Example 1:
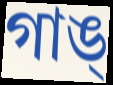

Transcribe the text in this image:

গাঙ্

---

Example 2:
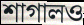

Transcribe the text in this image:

শাগালও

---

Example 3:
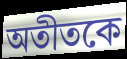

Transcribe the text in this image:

অতীতকে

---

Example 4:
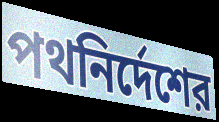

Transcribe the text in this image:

পথনির্দেশের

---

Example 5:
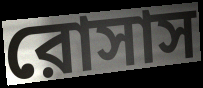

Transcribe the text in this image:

রোসাস